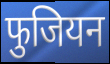
फुजियन